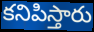
కనిపిస్తారు